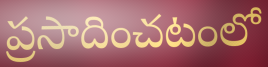
ప్రసాదించటంలో